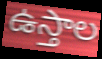
ఉస్తాల